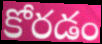
కోరడం